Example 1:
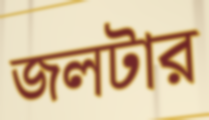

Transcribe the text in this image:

জলটার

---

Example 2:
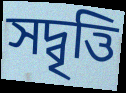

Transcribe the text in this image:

সদ্বৃত্তি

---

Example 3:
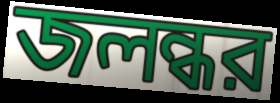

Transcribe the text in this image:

জলন্ধর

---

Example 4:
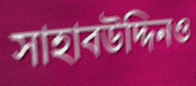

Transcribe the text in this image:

সাহাবউদ্দিনও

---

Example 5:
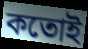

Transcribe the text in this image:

কতোই